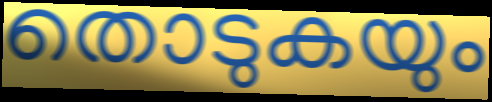
തൊടുകയും